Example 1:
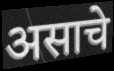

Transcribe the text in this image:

असाचे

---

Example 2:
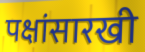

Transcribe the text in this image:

पक्षांसारखी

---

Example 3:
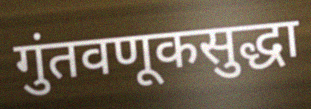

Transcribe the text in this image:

गुंतवणूकसुद्धा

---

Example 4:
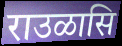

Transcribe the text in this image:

राउळासि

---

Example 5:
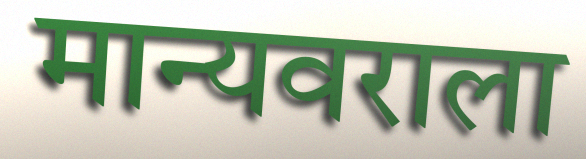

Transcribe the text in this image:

मान्यवराला